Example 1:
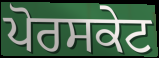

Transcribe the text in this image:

ਪੋਰਸਕੇਟ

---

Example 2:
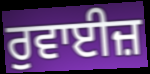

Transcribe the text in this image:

ਰੁਵਾਈਜ਼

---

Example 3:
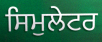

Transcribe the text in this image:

ਸਿਮੁਲੇਟਰ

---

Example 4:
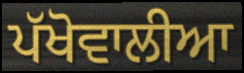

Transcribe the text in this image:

ਪੱਖੋਵਾਲੀਆ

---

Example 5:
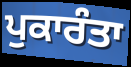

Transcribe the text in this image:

ਪੁਕਾਰੰਤਾ